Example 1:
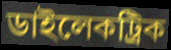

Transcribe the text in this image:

ডাইলেকট্রিক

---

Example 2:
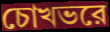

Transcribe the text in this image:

চোখভরে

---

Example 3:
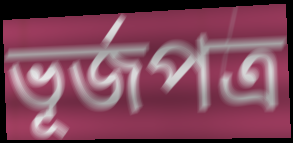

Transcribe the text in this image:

ভূর্জপত্র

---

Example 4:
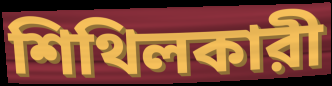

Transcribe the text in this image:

শিথিলকারী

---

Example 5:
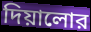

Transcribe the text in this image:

দিয়ালোর